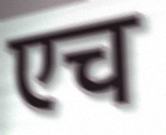
एच